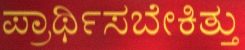
ಪ್ರಾರ್ಥಿಸಬೇಕಿತ್ತು